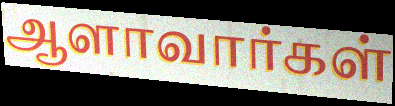
ஆளாவார்கள்